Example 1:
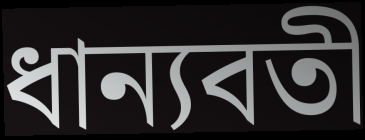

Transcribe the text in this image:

ধান্যবতী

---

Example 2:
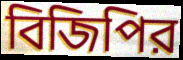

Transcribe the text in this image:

বিজিপির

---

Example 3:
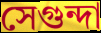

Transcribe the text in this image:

সেগুন্দা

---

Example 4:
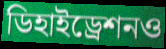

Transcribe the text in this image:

ডিহাইড্রেশনও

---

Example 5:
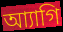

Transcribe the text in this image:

আ্যাগি